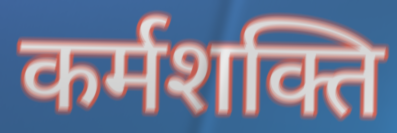
कर्मशक्ति